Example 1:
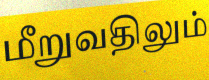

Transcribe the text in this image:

மீறுவதிலும்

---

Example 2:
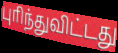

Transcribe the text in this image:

புரிந்துவிட்டது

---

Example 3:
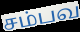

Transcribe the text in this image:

சம்பவ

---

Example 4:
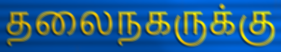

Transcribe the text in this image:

தலைநகருக்கு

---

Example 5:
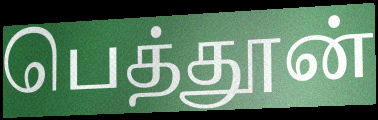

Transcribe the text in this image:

பெத்தூன்